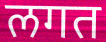
लगत